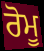
ਰੋਮੂ